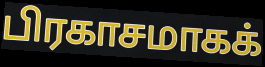
பிரகாசமாகக்